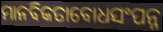
ମାନବିକତାବୋଧସଂପନ୍ନ